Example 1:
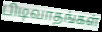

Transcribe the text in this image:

பிடிவாதங்கள்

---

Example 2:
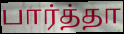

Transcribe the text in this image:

பார்த்தா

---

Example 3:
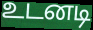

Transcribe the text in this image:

உடனடி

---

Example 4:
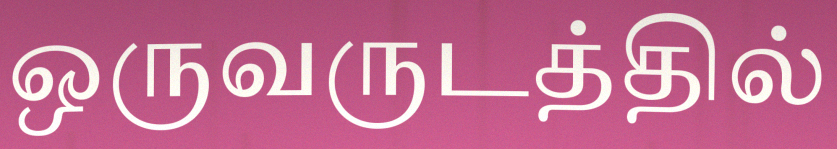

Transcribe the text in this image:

ஒருவருடத்தில்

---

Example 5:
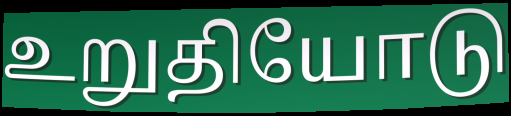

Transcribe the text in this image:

உறுதியோடு